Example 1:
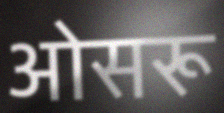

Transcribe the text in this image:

ओसरू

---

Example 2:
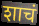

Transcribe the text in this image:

शाचं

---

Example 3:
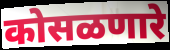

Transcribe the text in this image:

कोसळणारे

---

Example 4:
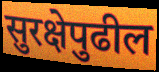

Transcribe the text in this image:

सुरक्षेपुढील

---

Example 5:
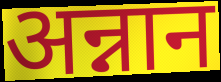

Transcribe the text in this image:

अन्नान